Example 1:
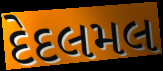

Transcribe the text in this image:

દેદલમલ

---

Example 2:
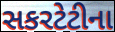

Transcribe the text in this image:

સકરટેટીના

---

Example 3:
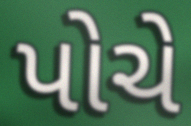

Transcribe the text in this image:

પોચે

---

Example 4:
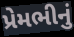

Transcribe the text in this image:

પ્રેમભીનું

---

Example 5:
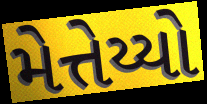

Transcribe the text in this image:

મેત્તેય્યો